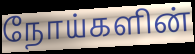
நோய்களின்